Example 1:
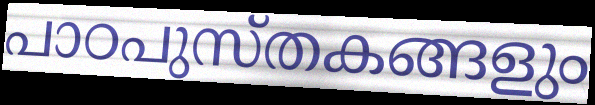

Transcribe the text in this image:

പാഠപുസ്തകങ്ങളും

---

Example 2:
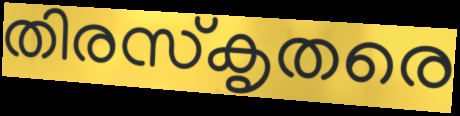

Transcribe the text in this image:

തിരസ്കൃതരെ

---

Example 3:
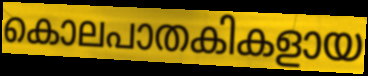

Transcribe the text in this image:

കൊലപാതകികളായ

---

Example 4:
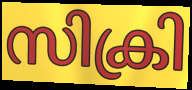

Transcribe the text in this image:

സിക്രി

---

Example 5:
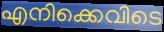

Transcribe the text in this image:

എനിക്കെവിടെ